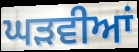
ਘੜਵੀਆਂ